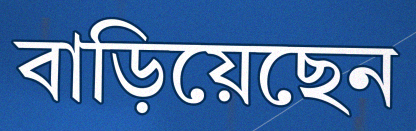
বাড়িয়েছেন